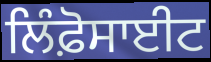
ਲਿੰਫ਼ੋਸਾਈਟ